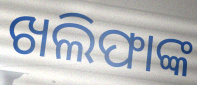
ଖଲିଫାଙ୍କ